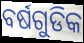
ବର୍ଷଗୁଡିକ